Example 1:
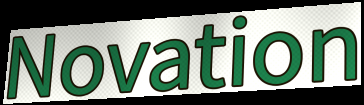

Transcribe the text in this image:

Novation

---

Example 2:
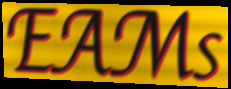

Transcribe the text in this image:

EAMs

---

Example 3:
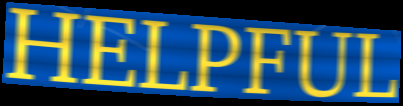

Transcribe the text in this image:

HELPFUL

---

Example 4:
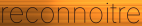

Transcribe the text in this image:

reconnoitre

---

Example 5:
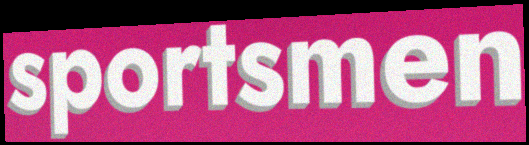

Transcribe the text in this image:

sportsmen